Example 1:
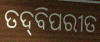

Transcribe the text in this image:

ତଦ୍‍ବିପରୀତ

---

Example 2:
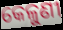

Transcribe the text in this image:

କେଳୁଣୀ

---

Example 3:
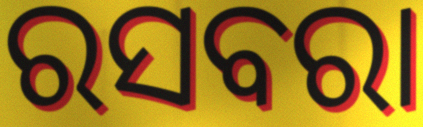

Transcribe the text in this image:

ରସବରା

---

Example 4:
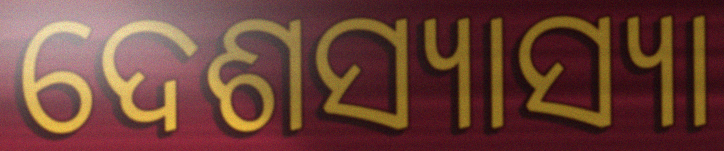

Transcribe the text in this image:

ଦେଶସ୍ୟାସ୍ୟା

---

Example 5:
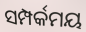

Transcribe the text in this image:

ସମ୍ପର୍କମୟ